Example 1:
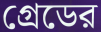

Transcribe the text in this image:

গ্রেডের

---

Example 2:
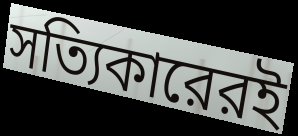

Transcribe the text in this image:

সত্যিকারেরই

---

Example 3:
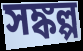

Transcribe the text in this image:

সঙ্কল্প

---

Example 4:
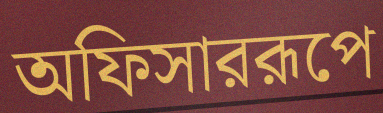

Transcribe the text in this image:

অফিসাররূপে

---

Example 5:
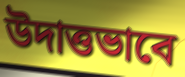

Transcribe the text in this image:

উদাত্তভাবে